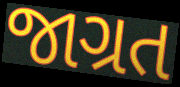
જાગ્રત